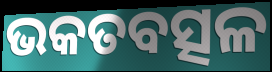
ଭକତବତ୍ସଳ